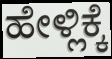
ಹೇಳ್ಲಿಕ್ಕೆ